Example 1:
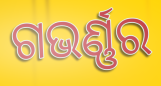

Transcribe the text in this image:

ଗଭର୍ଣ୍ଣର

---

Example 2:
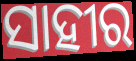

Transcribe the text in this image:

ସାହୀର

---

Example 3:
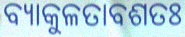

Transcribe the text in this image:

ବ୍ୟାକୁଳତାବଶତଃ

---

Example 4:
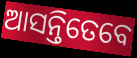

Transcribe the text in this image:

ଆସନ୍ତିତେବେ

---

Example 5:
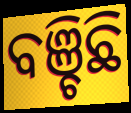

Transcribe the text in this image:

ବଞ୍ଚିଛି